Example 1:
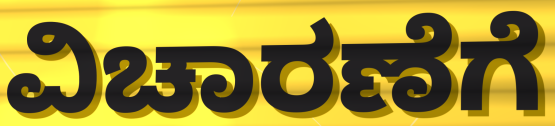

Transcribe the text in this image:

ವಿಚಾರಣೆಗೆ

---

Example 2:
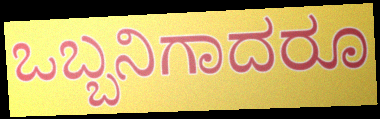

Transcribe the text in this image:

ಒಬ್ಬನಿಗಾದರೂ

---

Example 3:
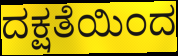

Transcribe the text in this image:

ದಕ್ಷತೆಯಿಂದ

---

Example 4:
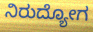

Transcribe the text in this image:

ನಿರುದ್ಯೋಗ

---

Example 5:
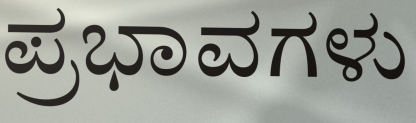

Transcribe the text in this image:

ಪ್ರಭಾವಗಳು